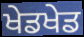
ਖੇਡਖੇਡ